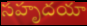
సహృదయా